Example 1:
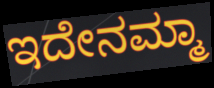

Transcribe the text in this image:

ಇದೇನಮ್ಮಾ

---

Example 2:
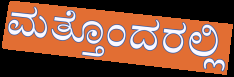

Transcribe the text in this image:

ಮತ್ತೊಂದರಲ್ಲಿ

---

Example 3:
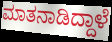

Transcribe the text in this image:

ಮಾತನಾಡಿದ್ದಾಳೆ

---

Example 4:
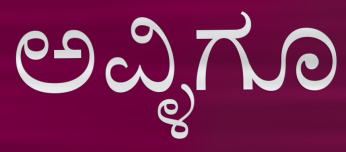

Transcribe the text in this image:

ಅವ್ಳಿಗೂ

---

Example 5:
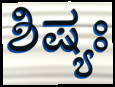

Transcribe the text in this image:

ಶಿಷ್ಯಃ